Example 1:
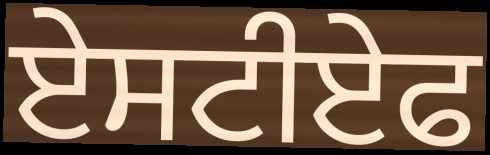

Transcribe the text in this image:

ਏਸਟੀਏਫ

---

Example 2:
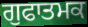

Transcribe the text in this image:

ਗੁਫਾਤਮਕ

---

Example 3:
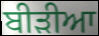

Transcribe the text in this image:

ਬੀੜੀਆ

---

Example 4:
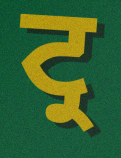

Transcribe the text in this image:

ਟ੍ਰ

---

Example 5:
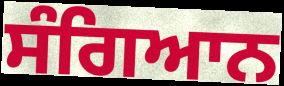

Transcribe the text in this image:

ਸੰਗਿਆਨ